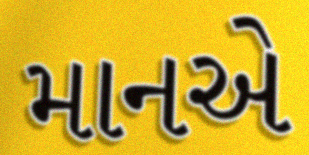
માનએ